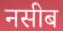
नसीब